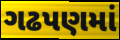
ગઢપણમાં